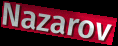
Nazarov